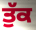
ਤੁੱਕ